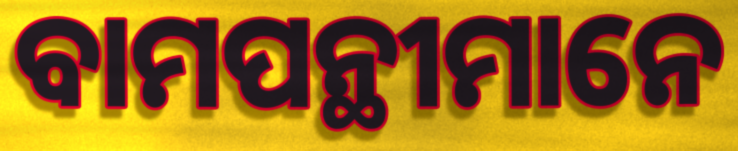
ବାମପନ୍ଥୀମାନେ